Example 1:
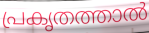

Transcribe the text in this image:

പ്രകൃതത്താൽ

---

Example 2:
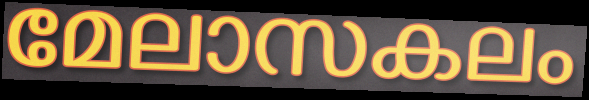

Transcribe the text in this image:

മേലാസകലം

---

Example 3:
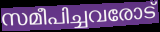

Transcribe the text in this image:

സമീപിച്ചവരോട്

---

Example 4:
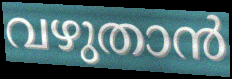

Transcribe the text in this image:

വഴുതാൻ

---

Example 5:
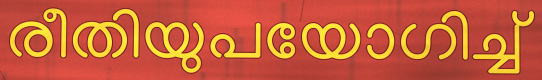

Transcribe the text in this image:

രീതിയുപയോഗിച്ച്